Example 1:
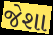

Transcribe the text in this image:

જેશા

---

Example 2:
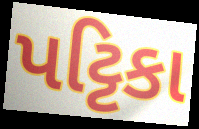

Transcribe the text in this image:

પટ્ટિકા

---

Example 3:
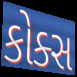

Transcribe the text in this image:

કોક્સ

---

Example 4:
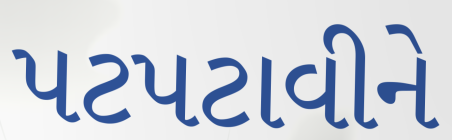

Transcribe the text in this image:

પટપટાવીને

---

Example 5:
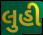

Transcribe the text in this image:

લુહી